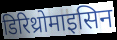
डिरिथ्रोमाइसिन